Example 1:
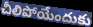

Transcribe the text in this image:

చీలిపోయేందుకు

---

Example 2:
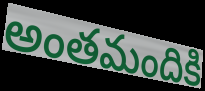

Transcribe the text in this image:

అంతమందికి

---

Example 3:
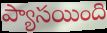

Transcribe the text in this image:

ప్యాసయింది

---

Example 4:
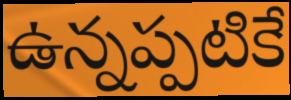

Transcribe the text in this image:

ఉన్నప్పటికే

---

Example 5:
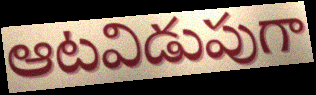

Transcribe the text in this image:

ఆటవిడుపుగా